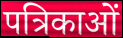
पत्रिकाओं